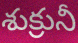
శుక్రునీ